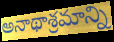
అనాథాశ్రమాన్ని